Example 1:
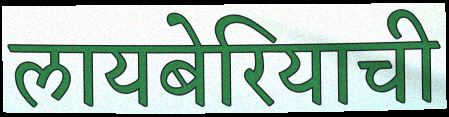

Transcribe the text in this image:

लायबेरियाची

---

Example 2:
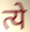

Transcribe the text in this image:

त्ये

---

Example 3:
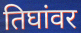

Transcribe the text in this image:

तिघांवर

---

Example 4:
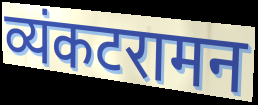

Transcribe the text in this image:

व्यंकटरामन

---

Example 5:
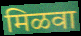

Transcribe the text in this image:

मिळवा